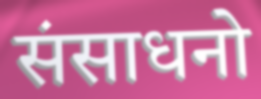
संसाधनो